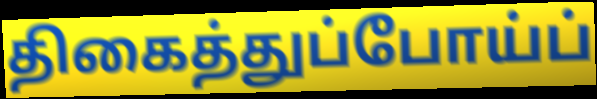
திகைத்துப்போய்ப்